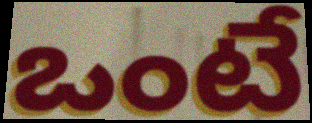
ఒంటే